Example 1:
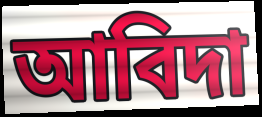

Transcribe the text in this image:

আবিদা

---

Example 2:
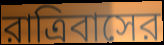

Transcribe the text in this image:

রাত্রিবাসের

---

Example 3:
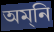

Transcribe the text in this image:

অম্‌নি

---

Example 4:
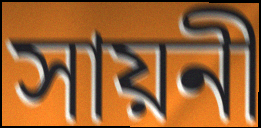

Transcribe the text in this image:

সায়নী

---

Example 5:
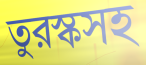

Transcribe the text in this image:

তুরস্কসহ